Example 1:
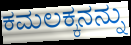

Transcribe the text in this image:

ಕಮಲಕ್ಕನನ್ನು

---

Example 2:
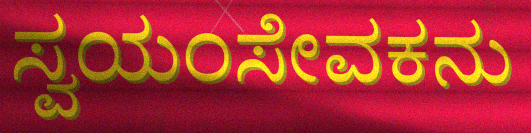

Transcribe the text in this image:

ಸ್ವಯಂಸೇವಕನು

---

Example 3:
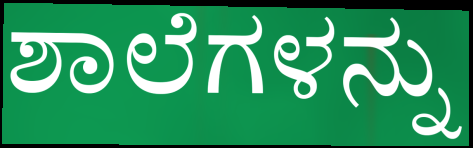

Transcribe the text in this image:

ಶಾಲೆಗಳನ್ನು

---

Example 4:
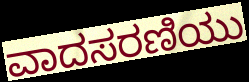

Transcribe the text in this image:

ವಾದಸರಣಿಯು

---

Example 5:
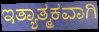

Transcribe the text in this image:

ಇತ್ಯಾತ್ಮಕವಾಗಿ